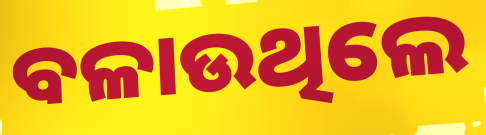
ବଳାଉଥିଲେ